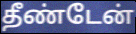
தீண்டேன்